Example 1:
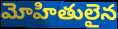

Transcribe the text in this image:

మోహితులైన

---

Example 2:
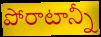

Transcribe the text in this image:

పోరాటాన్నీ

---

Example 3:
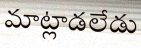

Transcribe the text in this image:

మాట్లాడలేడు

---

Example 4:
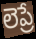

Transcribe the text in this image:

లెప్రే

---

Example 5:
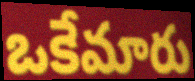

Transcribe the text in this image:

ఒకేమారు